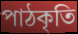
পাঠকৃতি